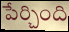
పేర్చింది